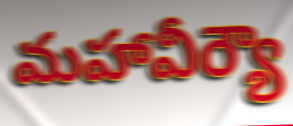
మహావీర్యౌ